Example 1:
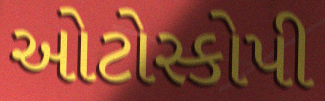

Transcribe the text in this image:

ઓટોસ્કોપી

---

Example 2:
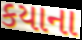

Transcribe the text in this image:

કયાના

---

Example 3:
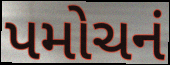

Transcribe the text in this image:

પમોચનં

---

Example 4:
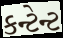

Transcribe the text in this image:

કન્ટેન્ટ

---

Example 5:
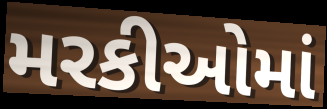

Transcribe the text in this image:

મરકીઓમાં